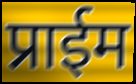
प्राईम